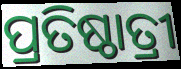
ପ୍ରତିଷ୍ଠାତ୍ରୀ